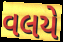
વલયે